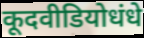
कूदवीडियोधंधे